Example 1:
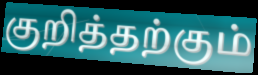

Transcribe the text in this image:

குறித்தற்கும்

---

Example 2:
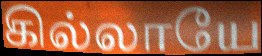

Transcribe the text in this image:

கில்லாயே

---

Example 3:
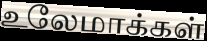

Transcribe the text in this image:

உலேமாக்கள்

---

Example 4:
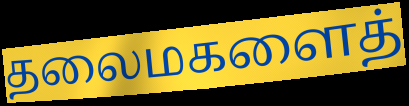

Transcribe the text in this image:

தலைமகளைத்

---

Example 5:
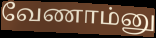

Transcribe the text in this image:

வேணாம்னு